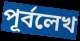
পূর্বলেখ